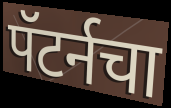
पॅटर्नचा